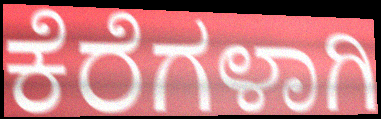
ಕೆರೆಗಳಾಗಿ